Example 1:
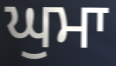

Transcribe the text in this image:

ਘੁਮਾ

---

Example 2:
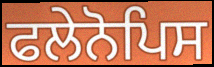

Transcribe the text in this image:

ਫਲੇਨੋਪਿਸ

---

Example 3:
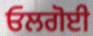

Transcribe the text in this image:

ਓਲਗੋਈ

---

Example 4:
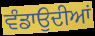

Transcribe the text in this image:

ਵੰਡਾਉਦੀਆਂ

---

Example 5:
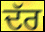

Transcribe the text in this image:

ਦੱਰ